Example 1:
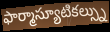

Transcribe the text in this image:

ఫార్మాస్యూటికల్స్ను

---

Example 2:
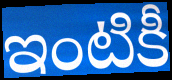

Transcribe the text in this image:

ఇంటికీ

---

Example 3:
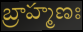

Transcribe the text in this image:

బ్రాహ్మణః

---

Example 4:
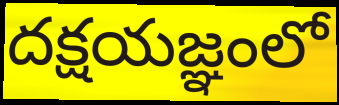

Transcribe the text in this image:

దక్షయజ్ఞంలో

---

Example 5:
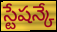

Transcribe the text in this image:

స్టేషన్కే